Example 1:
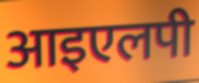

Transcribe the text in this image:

आइएलपी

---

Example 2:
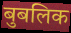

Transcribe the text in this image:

बुबलिक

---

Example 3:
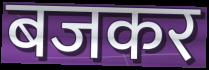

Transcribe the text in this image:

बजकर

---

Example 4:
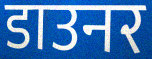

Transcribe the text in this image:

डाउनर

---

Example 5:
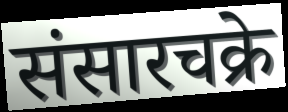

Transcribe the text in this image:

संसारचक्रे